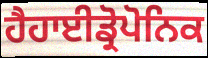
ਹੈਹਾਈਡ੍ਰੋਪੋਨਿਕ